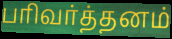
பரிவர்த்தனம்